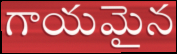
గాయమైన